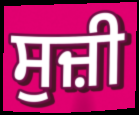
ਸੁਜ਼ੀ